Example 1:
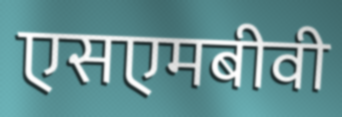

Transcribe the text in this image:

एसएमबीवी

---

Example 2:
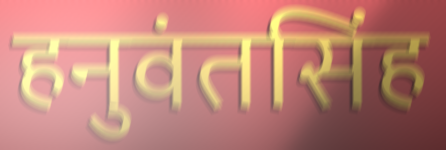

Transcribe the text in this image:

हनुवंतसिंह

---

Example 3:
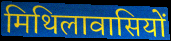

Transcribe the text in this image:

मिथिलावासियों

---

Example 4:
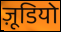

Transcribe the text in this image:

ज़ूडियो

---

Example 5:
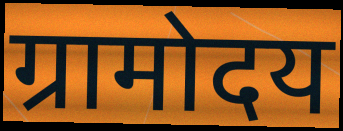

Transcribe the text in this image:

ग्रामोदय